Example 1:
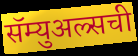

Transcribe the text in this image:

सॅम्युअल्सची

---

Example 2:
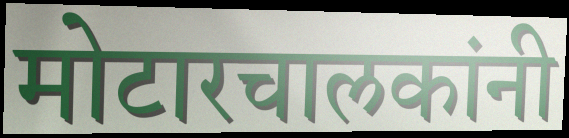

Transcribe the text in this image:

मोटारचालकांनी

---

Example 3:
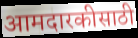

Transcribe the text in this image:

आमदारकीसाठी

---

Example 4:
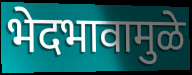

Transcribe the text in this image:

भेदभावामुळे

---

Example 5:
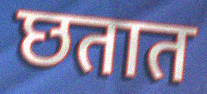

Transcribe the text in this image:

छतात